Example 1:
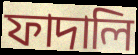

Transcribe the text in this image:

ফাদালি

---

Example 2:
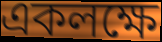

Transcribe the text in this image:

একলক্ষে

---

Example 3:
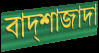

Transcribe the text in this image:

বাদ্শাজাদা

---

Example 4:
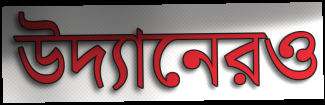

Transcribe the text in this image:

উদ্যানেরও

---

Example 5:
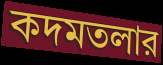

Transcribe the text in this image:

কদমতলার